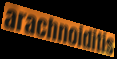
arachnoiditis